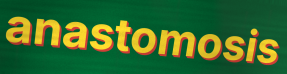
anastomosis